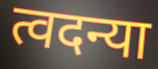
त्वदन्या